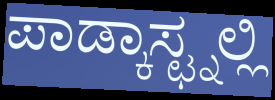
ಪಾಡ್ಕಾಸ್ಟ್ನಲ್ಲಿ